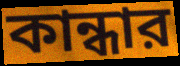
কান্ধার